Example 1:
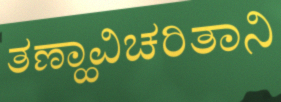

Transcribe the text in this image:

ತಣ್ಹಾವಿಚರಿತಾನಿ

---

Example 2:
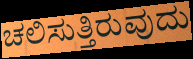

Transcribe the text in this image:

ಚಲಿಸುತ್ತಿರುವುದು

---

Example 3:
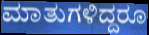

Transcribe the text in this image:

ಮಾತುಗಳಿದ್ದರೂ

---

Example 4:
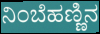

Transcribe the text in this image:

ನಿಂಬೆಹಣ್ಣಿನ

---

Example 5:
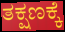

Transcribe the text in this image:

ತಕ್ಷಣಕ್ಕೆ